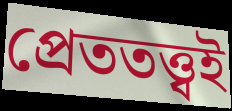
প্রেততত্ত্বই